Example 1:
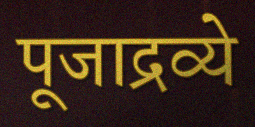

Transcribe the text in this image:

पूजाद्रव्ये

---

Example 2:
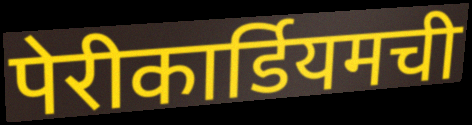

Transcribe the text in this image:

पेरीकार्डियमची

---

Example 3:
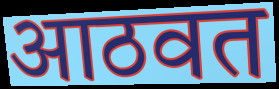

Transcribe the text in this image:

आठवत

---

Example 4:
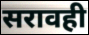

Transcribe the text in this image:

सरावही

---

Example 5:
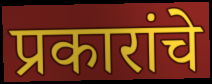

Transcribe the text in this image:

प्रकारांचे